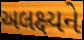
અલક્ષ્યને